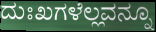
ದುಃಖಗಳೆಲ್ಲವನ್ನೂ